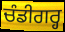
ਚੰਡੀਗਰ੍ਹ